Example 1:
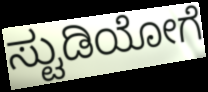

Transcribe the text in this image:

ಸ್ಟುಡಿಯೋಗೆ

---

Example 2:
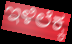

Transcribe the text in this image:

ಇಳಿಲೆಕ್ಕ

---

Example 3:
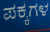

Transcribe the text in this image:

ಪಕ್ಕಗಳ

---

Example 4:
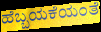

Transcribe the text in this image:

ಹೆಬ್ಬಯಕೆಯಂತೆ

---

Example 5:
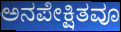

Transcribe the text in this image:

ಅನಪೇಕ್ಷಿತವೂ